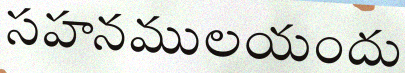
సహనములయందు